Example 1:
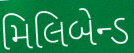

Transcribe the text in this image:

મિલિબેન્ડ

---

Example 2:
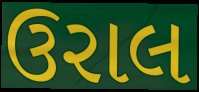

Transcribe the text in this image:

ઉરાલ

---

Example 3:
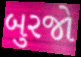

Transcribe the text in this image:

બુરજો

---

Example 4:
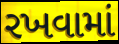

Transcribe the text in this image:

રખવામાં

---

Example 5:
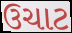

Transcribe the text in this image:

ઉચાટ